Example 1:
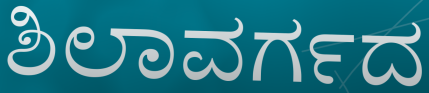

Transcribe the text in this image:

ಶಿಲಾವರ್ಗದ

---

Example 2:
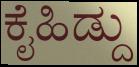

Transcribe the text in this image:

ಕೈಹಿಡ್ದು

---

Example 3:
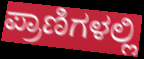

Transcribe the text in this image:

ಪ್ರಾಣಿಗಳಲ್ಲಿ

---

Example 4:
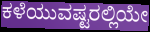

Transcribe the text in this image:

ಕಳೆಯುವಷ್ಟರಲ್ಲಿಯೇ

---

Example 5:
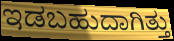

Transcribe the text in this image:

ಇಡಬಹುದಾಗಿತ್ತು